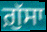
ਗ਼ੁੱਸਾ